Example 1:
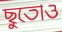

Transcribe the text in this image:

ছুতোও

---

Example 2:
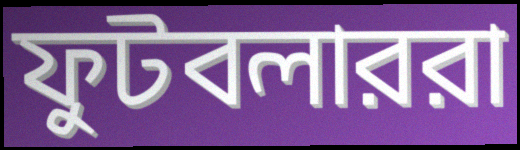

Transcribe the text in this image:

ফুটবলাররা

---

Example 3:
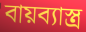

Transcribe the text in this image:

বায়ব্যাস্ত্র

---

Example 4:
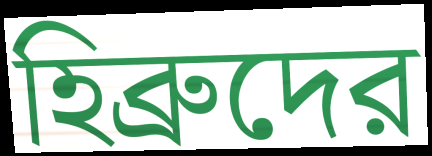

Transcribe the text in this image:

হিব্রুদের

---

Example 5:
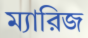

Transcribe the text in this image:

ম্যারিজ